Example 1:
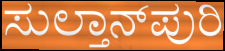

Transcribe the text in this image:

ಸುಲ್ತಾನ್‌ಪುರಿ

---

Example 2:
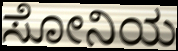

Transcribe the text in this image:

ಸೋನಿಯ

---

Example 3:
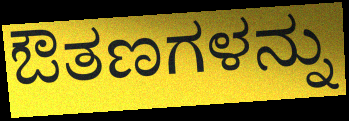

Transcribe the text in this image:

ಔತಣಗಳನ್ನು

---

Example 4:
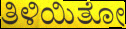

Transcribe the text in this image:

ತಿಳಿಯಿತೋ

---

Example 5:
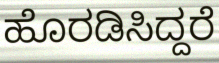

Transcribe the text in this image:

ಹೊರಡಿಸಿದ್ದರೆ